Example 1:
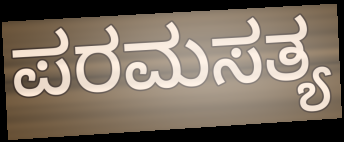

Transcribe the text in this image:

ಪರಮಸತ್ಯ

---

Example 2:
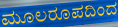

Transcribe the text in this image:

ಮೂಲರೂಪದಿಂದ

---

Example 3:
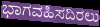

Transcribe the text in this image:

ಭಾಗವಹಿಸದಿರಲು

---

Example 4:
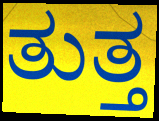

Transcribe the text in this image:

ತುತ್ತ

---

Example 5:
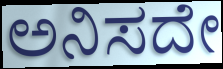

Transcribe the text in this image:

ಅನಿಸದೇ